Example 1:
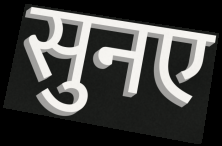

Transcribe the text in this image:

सुनए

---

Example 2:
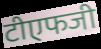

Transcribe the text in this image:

टीएफजी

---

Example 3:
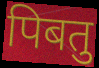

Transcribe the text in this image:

पिबतु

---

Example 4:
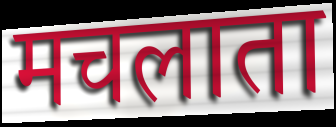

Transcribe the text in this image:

मचलाता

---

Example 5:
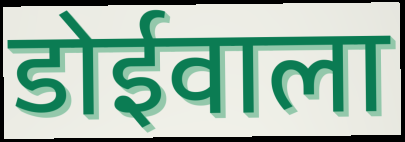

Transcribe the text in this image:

डोईवाला